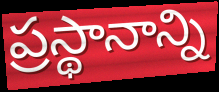
ప్రస్థానాన్ని